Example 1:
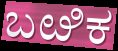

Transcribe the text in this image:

ಬೞಿಕ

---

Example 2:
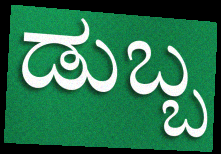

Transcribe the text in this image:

ಡುಬ್ಬ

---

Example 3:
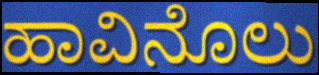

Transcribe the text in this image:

ಹಾವಿನೊಲು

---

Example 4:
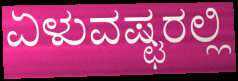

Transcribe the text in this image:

ಏಳುವಷ್ಟರಲ್ಲಿ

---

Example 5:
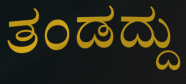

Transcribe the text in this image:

ತಂಡದ್ದು